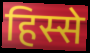
हिस्से